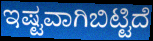
ಇಷ್ಟವಾಗಿಬಿಟ್ಟಿದೆ